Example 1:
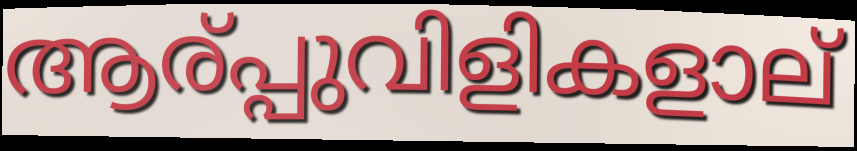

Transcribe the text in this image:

ആര്പ്പുവിളികളാല്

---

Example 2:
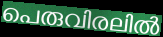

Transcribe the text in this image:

പെരുവിരലിൽ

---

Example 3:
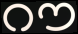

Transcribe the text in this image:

റൗ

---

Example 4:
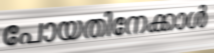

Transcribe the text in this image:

പോയതിനേക്കാൾ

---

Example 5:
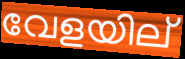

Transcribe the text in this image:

വേളയില്